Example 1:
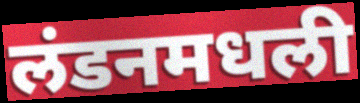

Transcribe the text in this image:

लंडनमधली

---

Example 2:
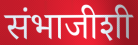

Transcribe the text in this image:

संभाजीशी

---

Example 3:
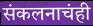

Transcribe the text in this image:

संकलनाचंही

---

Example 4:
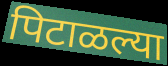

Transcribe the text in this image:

पिटाळल्या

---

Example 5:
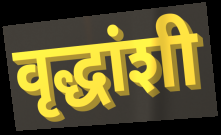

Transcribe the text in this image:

वृद्धांशी